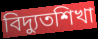
বিদ্যুতশিখা